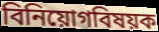
বিনিয়োগবিষয়ক